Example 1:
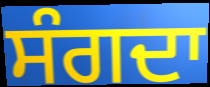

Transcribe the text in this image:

ਸੰਗਦਾ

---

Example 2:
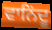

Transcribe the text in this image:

ਵਾਨਿਂਦੂ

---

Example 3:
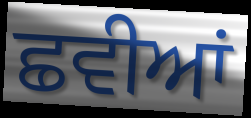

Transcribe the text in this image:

ਛਵੀਆਂ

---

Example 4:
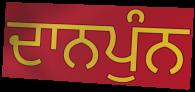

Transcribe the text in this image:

ਦਾਨਪੁੰਨ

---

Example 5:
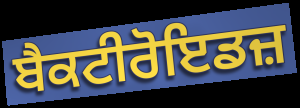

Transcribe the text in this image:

ਬੈਕਟੀਰੋਇਡਜ਼